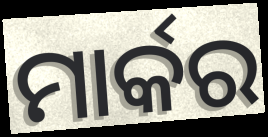
ମାର୍କର